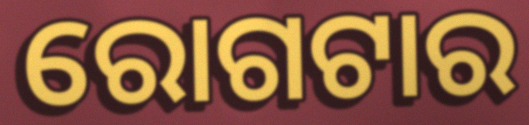
ରୋଗଟାର